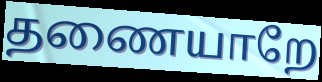
தணையாறே